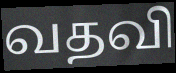
வதவி